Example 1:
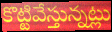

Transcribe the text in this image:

కొట్టివేస్తున్నట్లు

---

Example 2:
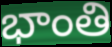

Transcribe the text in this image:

భాంతి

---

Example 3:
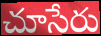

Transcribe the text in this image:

చూసేరు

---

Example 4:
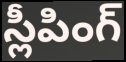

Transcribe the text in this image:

స్లీపింగ్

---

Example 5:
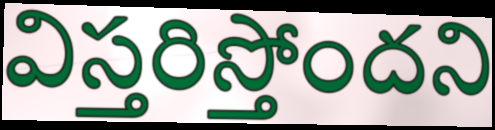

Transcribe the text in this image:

విస్తరిస్తోందని